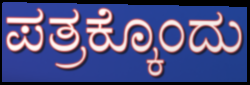
ಪತ್ರಕ್ಕೊಂದು